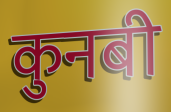
कुनबी